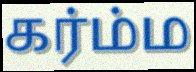
கர்ம்ம